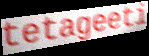
tetageeti